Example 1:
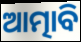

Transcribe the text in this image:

ଆତ୍ମାବି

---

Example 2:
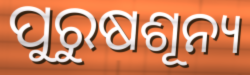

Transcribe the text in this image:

ପୁରୁଷଶୂନ୍ୟ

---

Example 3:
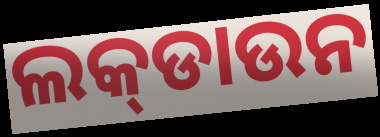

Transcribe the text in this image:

ଲକ୍‌ଡାଉନ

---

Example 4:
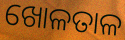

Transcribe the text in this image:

ଖୋଳତାଳ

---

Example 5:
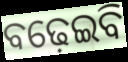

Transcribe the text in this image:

ବଢ଼େଇବି